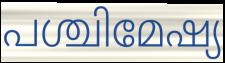
പശ്ചിമേഷ്യ